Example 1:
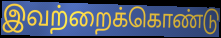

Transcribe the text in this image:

இவற்றைக்கொண்டு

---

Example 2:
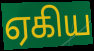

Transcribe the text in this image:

ஏகிய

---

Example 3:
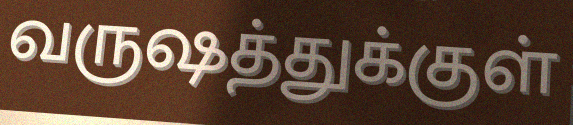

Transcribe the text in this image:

வருஷத்துக்குள்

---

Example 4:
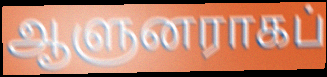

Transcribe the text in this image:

ஆளுனராகப்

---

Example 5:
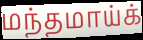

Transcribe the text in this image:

மந்தமாய்க்